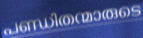
പണ്ഡിതന്മാരുടെ